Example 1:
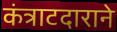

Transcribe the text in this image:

कंत्राटदाराने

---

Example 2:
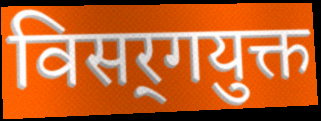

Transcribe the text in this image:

विसर्गयुक्त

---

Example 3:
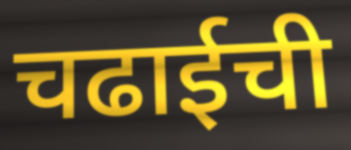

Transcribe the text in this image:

चढाईची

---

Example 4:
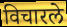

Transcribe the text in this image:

विचारले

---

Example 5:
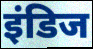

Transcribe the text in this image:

इंडिज